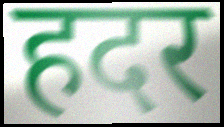
हदर